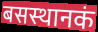
बसस्थानकं